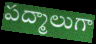
పద్మాలుగా